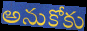
అనుకోకు